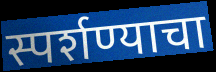
स्पर्शण्याचा